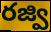
రజ్వి